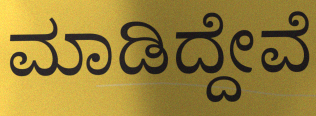
ಮಾಡಿದ್ದೇವೆ